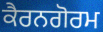
ਕੈਰਨਗੋਰਮ